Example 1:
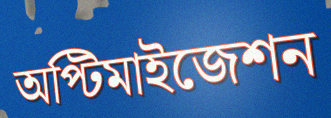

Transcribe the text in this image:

অপ্টিমাইজেশন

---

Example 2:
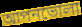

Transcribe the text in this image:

আপনভোলা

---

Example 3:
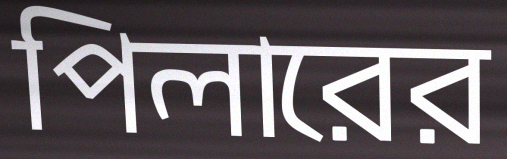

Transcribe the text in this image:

পিলারের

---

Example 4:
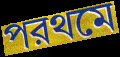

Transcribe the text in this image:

পরথমে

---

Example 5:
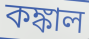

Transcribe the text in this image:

কঙ্কাল